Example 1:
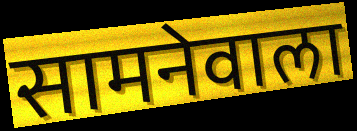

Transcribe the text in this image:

सामनेवाला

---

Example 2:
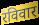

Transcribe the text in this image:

रविवार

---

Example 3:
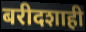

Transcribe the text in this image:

बरीदशाही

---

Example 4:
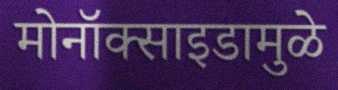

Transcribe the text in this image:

मोनॉक्साइडामुळे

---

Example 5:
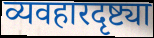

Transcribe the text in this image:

व्यवहारदृष्ट्या